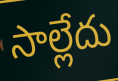
సాల్లేదు